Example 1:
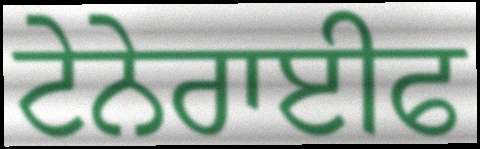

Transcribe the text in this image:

ਟੇਨੇਰਾਈਫ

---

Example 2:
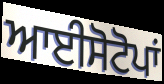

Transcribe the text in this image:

ਆਈਸੋਟੋਪਾਂ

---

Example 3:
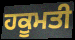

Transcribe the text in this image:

ਹਕੂਮਤੀ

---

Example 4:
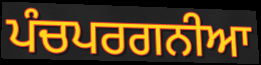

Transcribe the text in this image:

ਪੰਚਪਰਗਨੀਆ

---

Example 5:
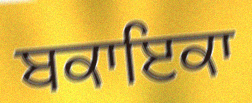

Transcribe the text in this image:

ਬਕਾਇਕਾ